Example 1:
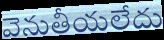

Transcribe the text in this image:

వెనుతీయలేదు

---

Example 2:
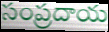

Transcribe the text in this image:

సంప్రదాయ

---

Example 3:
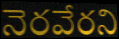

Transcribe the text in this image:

నెరవేరని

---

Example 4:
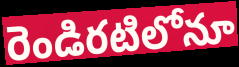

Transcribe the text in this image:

రెండిరటిలోనూ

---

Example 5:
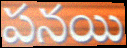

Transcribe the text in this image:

పనయి